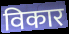
विकार